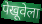
पेखूवेला